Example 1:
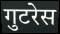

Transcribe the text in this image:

गुटरेस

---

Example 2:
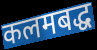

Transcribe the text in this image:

कलमबद्ध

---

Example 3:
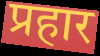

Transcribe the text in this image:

प्रहार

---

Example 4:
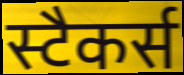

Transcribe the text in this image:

स्टैकर्स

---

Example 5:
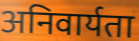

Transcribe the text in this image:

अनिवार्यता